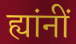
ह्यांनीं